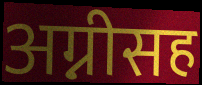
अग्नीसह